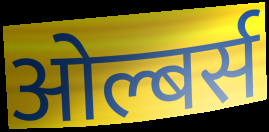
ओल्बर्स